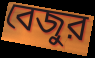
বেজুর